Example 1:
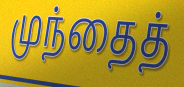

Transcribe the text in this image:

முந்தைத்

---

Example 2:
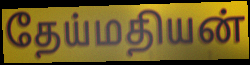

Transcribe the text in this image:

தேய்மதியன்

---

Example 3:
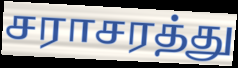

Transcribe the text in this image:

சராசரத்து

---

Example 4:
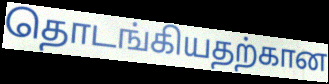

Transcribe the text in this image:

தொடங்கியதற்கான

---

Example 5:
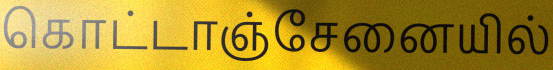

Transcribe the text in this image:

கொட்டாஞ்சேனையில்